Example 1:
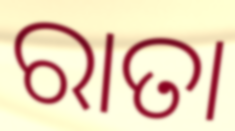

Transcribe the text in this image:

ରାତା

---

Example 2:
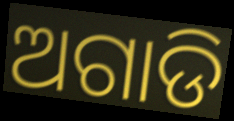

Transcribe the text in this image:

ଅଗାଡି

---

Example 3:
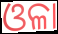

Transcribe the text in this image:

ଓଳା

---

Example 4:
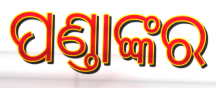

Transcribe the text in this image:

ପଣ୍ତାଙ୍କର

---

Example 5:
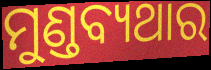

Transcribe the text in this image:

ମୁଣ୍ଡବ୍ୟଥାର